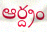
ఆర్ద్రం